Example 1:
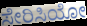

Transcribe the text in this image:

ಸೇರಿಸಿಯೋ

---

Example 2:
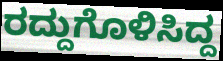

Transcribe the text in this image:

ರದ್ದುಗೊಳಿಸಿದ್ದ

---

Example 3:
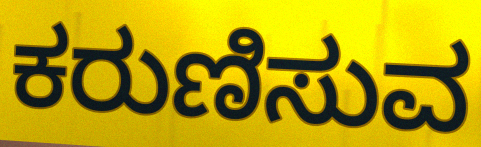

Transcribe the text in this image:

ಕರುಣಿಸುವ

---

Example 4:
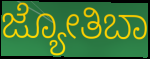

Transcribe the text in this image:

ಜ್ಯೋತಿಬಾ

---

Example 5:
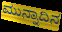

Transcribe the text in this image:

ಮುನ್ನಾದಿನ